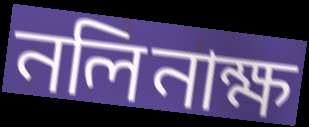
নলিনাক্ষ